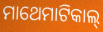
ମାଥେମାଟିକାଲ୍